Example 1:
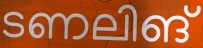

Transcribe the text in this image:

ടണലിങ്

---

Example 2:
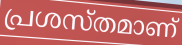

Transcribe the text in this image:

പ്രശസ്തമാണ്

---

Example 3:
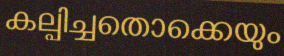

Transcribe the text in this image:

കല്പിച്ചതൊക്കെയും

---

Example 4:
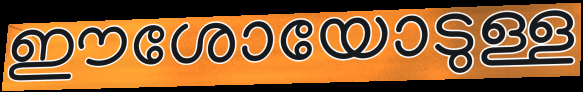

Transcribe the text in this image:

ഈശോയോടുള്ള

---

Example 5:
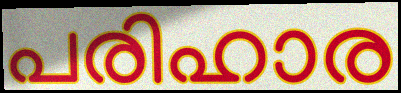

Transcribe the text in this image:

പരിഹാര